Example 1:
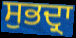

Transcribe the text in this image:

ਸੁਭਦ੍ਰਾ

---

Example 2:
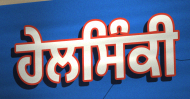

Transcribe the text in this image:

ਹੇਲਸਿੰਕੀ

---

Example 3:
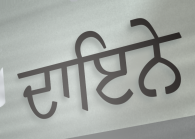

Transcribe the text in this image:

ਦਾਇਨੇ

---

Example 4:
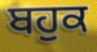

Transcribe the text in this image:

ਬਹੁਕ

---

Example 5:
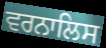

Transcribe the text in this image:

ਵਰਨਾਲਿਸ